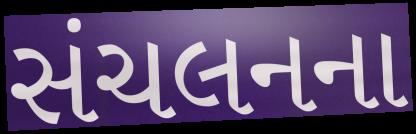
સંચલનના